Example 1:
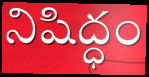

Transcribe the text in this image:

నిషిద్ధం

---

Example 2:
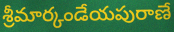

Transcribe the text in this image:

శ్రీమార్కండేయపురాణే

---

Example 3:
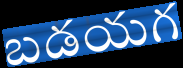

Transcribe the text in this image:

బడయగ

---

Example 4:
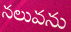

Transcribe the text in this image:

నలువను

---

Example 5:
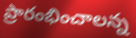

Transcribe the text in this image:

ప్రారంభించాలన్న